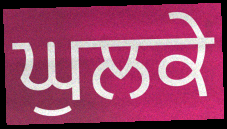
ਘੁਲਕੇ